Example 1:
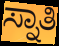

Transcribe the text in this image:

ಸ್ನಾತಿ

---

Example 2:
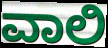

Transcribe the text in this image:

ವಾಲಿ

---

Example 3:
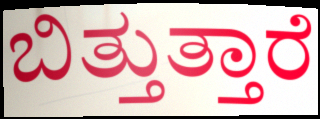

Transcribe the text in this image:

ಬಿತ್ತುತ್ತಾರೆ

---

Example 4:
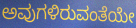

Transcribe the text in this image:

ಅವುಗಳಿರುವಂತೆಯೇ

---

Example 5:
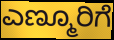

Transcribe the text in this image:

ಎಣ್ಮೂರಿಗೆ